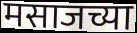
मसाजच्या